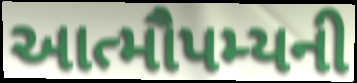
આત્મૌપમ્યની